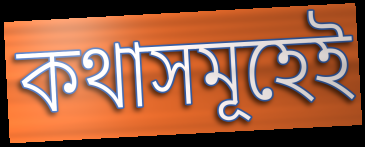
কথাসমূহেই